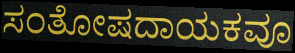
ಸಂತೋಷದಾಯಕವೂ